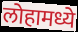
लोहामध्ये